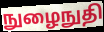
நுழைநுதி